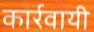
कार्रवायी